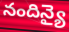
నందిన్యై